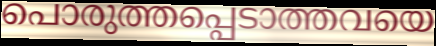
പൊരുത്തപ്പെടാത്തവയെ